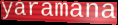
yaramana